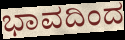
ಭಾವದಿಂದ